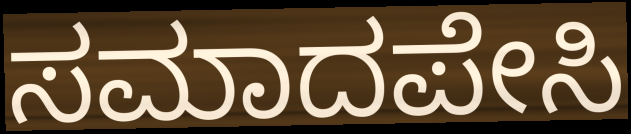
ಸಮಾದಪೇಸಿ